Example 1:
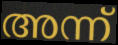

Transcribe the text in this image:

അന്ന്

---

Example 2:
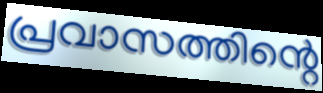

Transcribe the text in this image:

പ്രവാസത്തിന്റെ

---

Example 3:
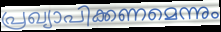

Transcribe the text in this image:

പ്രഖ്യാപിക്കണമെന്നും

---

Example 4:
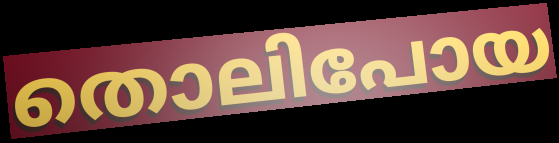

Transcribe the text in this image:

തൊലിപോയ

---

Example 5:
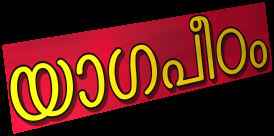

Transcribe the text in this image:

യാഗപീഠം